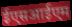
ईएसआईएम